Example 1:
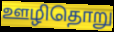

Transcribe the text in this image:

ஊழிதொறு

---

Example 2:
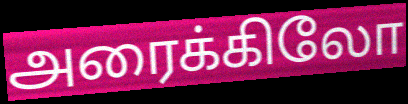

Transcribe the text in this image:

அரைக்கிலோ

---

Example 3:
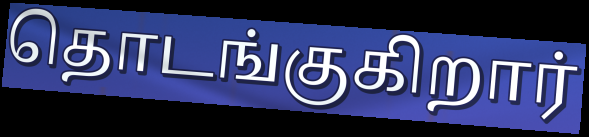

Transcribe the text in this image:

தொடங்குகிறார்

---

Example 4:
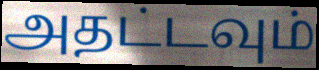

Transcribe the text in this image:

அதட்டவும்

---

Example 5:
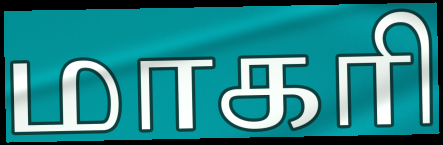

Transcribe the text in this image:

மாகரி